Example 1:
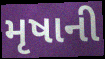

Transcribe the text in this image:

મૃષાની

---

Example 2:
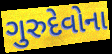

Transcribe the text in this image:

ગુરુદેવોના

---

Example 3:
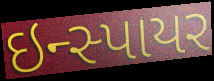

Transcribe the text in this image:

ઇન્સ્પાયર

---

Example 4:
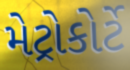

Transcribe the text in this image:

મેટ્રોકોર્ટે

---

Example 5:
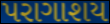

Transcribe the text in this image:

પરાગાશય